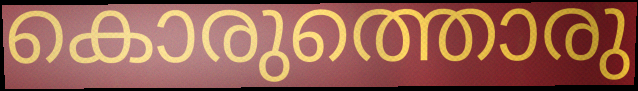
കൊരുത്തൊരു